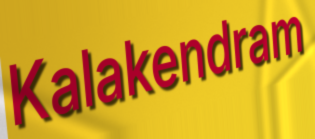
Kalakendram